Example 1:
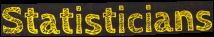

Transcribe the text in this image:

Statisticians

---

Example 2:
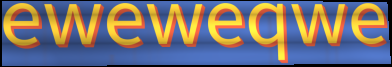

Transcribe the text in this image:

eweweqwe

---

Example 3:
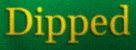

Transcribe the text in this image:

Dipped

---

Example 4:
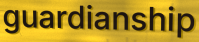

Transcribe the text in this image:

guardianship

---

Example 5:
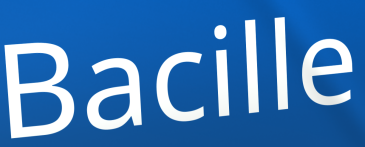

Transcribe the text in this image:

Bacille